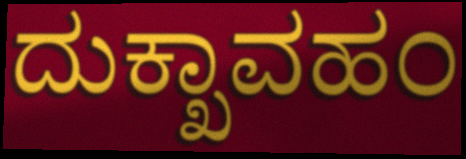
ದುಕ್ಖಾವಹಂ